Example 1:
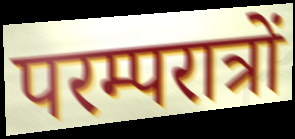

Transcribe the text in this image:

परम्परात्रों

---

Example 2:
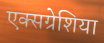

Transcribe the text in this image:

एक्सग्रेशिया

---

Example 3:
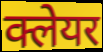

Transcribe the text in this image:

क्लेयर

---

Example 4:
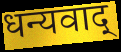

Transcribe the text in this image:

धन्यवाद्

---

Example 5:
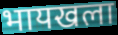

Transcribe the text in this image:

भायखला